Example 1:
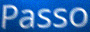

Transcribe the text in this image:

Passo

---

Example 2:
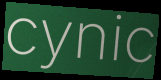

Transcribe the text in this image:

cynic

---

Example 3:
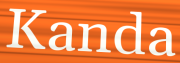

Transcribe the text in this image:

Kanda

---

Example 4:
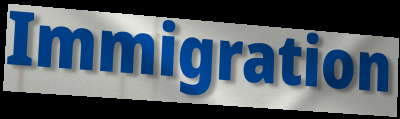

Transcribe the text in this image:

Immigration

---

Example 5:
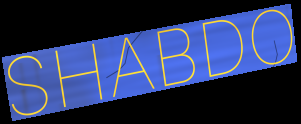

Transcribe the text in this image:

SHABDO